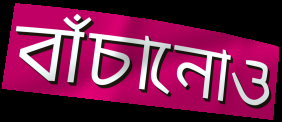
বাঁচানোও